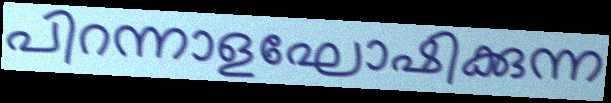
പിറന്നാളഘോഷിക്കുന്ന